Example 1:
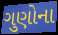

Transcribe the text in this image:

ગુણોના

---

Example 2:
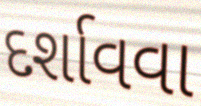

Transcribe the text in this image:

દર્શાવવા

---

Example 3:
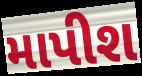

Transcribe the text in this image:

માપીશ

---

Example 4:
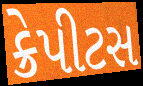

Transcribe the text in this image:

ક્રેપીટસ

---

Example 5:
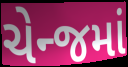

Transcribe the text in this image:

ચેન્જમાં